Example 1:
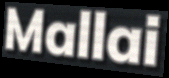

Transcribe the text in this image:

Mallai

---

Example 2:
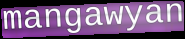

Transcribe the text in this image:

mangawyan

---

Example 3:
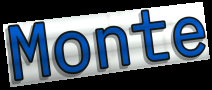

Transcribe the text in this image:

Monte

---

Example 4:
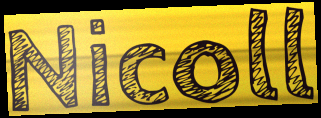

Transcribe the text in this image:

Nicoll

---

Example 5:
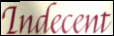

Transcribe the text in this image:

Indecent